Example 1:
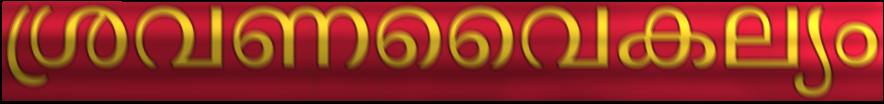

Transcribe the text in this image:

ശ്രവണവൈകല്യം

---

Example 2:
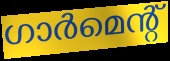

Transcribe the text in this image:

ഗാർമെന്റ്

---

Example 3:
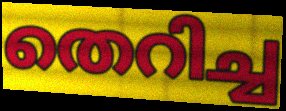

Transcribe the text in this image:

തെറിച്ച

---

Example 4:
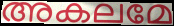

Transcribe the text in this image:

അകലമേ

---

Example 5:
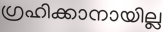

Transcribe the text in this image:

ഗ്രഹിക്കാനായില്ല